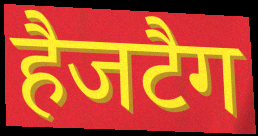
हैजटैग